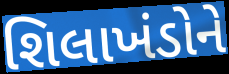
શિલાખંડોને